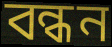
বন্ধন